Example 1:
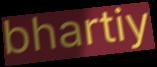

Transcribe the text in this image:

bhartiy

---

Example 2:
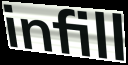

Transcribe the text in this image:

infill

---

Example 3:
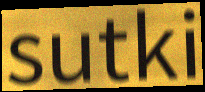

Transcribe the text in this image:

sutki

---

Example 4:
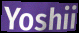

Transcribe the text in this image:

Yoshii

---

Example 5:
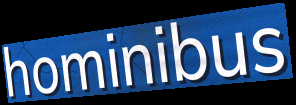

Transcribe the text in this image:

hominibus